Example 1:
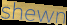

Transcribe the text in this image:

shewn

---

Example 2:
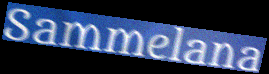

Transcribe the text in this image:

Sammelana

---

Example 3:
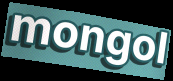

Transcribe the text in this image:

mongol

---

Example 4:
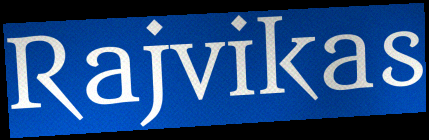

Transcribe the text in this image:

Rajvikas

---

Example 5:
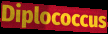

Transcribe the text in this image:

Diplococcus